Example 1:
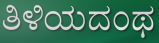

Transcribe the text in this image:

ತಿಳಿಯದಂಥ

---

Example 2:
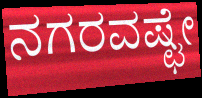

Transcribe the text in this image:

ನಗರವಷ್ಟೇ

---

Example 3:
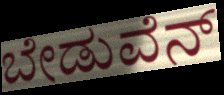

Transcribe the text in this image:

ಬೇಡುವೆನ್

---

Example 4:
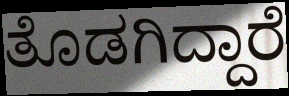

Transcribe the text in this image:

ತೊಡಗಿದ್ದಾರೆ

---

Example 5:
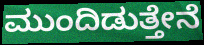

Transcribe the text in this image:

ಮುಂದಿಡುತ್ತೇನೆ